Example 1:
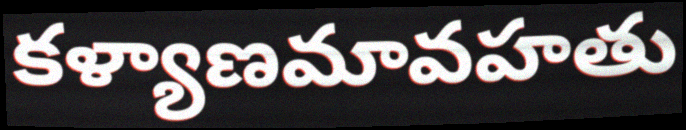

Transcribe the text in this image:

కళ్యాణమావహతు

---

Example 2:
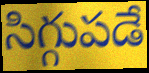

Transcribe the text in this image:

సిగ్గుపడే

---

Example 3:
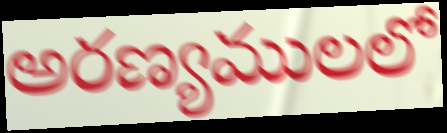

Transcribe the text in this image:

అరణ్యములలో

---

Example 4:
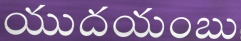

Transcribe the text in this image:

యుదయంబు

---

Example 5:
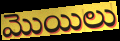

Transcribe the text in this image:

మొయిలు